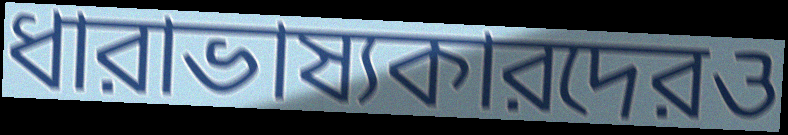
ধারাভাষ্যকারদেরও